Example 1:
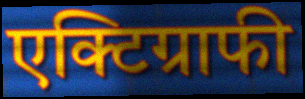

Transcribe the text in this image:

एक्टिग्राफी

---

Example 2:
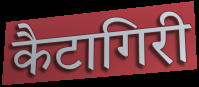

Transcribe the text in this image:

कैटागिरी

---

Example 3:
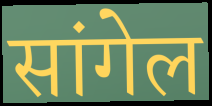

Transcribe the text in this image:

सांगेल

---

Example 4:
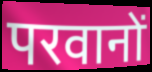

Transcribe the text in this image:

परवानों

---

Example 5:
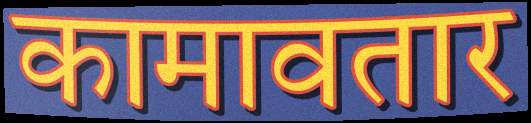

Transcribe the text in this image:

कामावतार